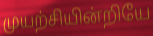
முயற்சியின்றியே